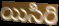
యిసిరి